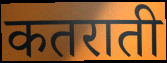
कतराती